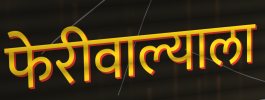
फेरीवाल्याला